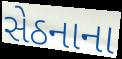
સેઠનાના